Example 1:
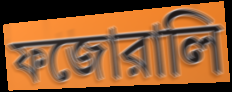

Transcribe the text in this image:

ফজোরালি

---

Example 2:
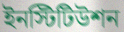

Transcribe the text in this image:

ইনস্টিটিউশন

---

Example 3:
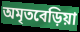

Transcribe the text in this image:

অমৃতবেড়িয়া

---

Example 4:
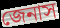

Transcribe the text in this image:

জেনাস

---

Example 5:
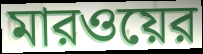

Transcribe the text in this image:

মারওয়ের